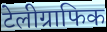
टेलीग्राफिक